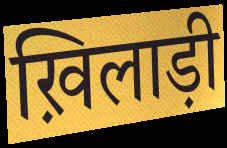
ख़िलाड़ी